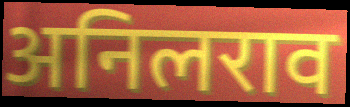
अनिलराव